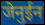
जेनुईन